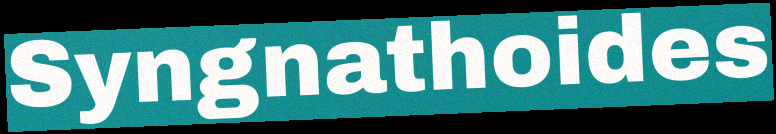
Syngnathoides